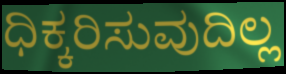
ಧಿಕ್ಕರಿಸುವುದಿಲ್ಲ